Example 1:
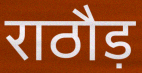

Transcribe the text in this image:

राठौड़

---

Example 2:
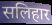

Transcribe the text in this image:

सलिहार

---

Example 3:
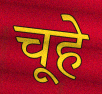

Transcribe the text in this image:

चूहे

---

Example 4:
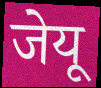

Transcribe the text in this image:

जेयू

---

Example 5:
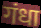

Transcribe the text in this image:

गंधा